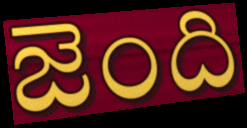
జెంది